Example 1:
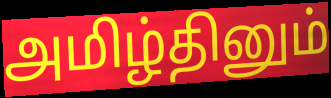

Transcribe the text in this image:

அமிழ்தினும்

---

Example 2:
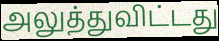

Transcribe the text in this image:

அலுத்துவிட்டது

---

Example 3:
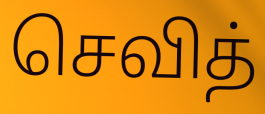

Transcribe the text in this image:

செவித்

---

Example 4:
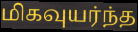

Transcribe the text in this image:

மிகவுயர்ந்த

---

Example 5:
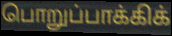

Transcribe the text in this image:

பொறுப்பாக்கிக்